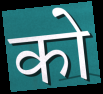
को